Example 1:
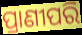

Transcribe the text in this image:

ପ୍ରାଣୀପରି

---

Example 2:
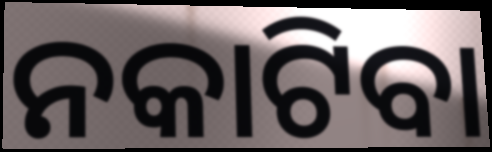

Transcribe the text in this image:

ନକାଟିବା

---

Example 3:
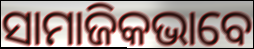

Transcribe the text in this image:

ସାମାଜିକଭାବେ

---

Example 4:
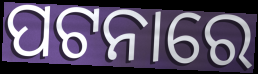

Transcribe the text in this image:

ପଟନାରେ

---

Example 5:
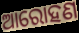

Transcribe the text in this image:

ଆରୋହଣ